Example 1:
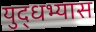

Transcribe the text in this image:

युद्धभ्यास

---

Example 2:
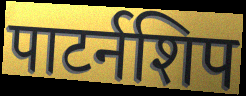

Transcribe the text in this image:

पाटर्नशिप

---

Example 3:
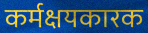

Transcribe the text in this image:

कर्मक्षयकारक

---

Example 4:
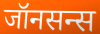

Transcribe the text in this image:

जॉनसन्स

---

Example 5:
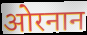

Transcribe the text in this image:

ओरनान